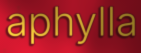
aphylla